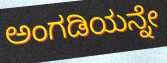
ಅಂಗಡಿಯನ್ನೇ